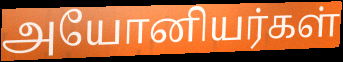
அயோனியர்கள்